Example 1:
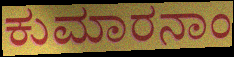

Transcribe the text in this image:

ಕುಮಾರನಾಂ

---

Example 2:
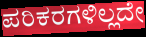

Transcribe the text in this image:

ಪರಿಕರಗಳಿಲ್ಲದೇ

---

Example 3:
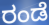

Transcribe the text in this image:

ರಂಡೆ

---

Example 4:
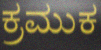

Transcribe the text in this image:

ಕ್ರಮುಕ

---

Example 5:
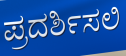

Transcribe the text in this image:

ಪ್ರದರ್ಶಿಸಲಿ